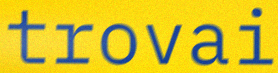
trovai